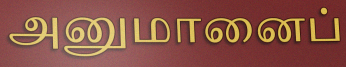
அனுமானைப்